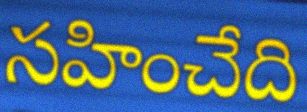
సహించేది